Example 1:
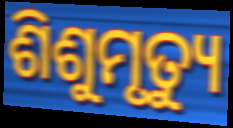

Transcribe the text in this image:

ଶିଶୁମୃତ୍ୟୁ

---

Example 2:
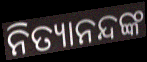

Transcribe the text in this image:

ନିତ୍ୟାନନ୍ଦଙ୍କ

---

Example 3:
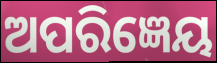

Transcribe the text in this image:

ଅପରିଜ୍ଞେୟ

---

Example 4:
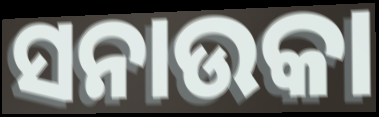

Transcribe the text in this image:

ସନାଉକା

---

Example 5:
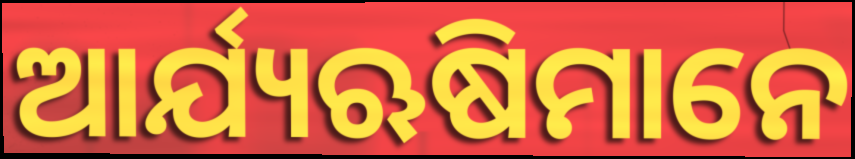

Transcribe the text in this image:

ଆର୍ଯ୍ୟଋଷିମାନେ